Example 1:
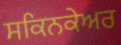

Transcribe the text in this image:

ਸਕਿਨਕੇਅਰ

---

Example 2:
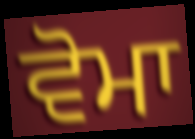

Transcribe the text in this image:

ਵੋਮਾ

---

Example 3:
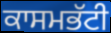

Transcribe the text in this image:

ਕਾਸਮਭੱਟੀ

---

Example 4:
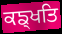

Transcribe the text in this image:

ਕਙ੍ਖਤਿ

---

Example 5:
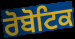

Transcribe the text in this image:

ਰੋਬੋਟਿਕ